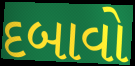
દબાવો